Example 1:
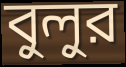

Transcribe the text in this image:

বুলুর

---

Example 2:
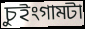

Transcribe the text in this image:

চুইংগামটা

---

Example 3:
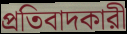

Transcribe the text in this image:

প্রতিবাদকারী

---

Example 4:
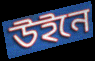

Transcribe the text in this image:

উইনে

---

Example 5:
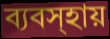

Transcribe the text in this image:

ব্যবস্হায়